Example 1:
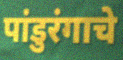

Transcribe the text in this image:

पांडुरंगाचे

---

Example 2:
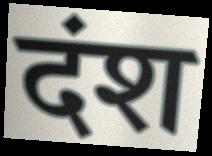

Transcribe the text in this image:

दंश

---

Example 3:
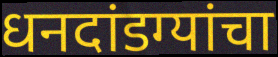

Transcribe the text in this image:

धनदांडग्यांचा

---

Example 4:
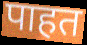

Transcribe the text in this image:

पाहत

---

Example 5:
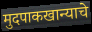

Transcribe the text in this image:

मुदपाकखान्याचे